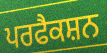
ਪਰਫੈਕਸ਼ਨ